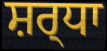
ਸ਼ਰ੍ਧਾ